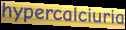
hypercalciuria